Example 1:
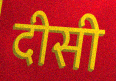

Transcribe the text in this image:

दीसी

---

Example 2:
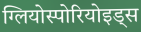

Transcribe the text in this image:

ग्लियोस्पोरियोइड्स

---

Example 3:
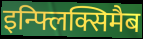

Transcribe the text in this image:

इन्फ्लिक्सिमैब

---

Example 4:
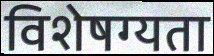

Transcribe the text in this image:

विशेषग्यता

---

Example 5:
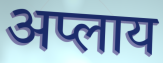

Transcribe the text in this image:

अप्लाय